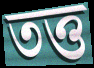
তত্ত